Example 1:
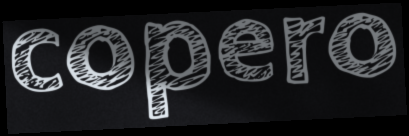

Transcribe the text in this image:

copero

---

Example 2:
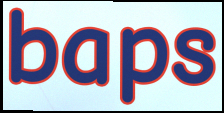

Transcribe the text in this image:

baps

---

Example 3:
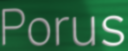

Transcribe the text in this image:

Porus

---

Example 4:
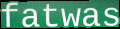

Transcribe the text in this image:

fatwas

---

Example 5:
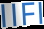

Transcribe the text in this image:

IIFI